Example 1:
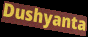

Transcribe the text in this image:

Dushyanta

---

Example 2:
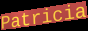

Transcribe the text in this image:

Patricia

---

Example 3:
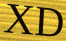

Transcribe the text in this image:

XD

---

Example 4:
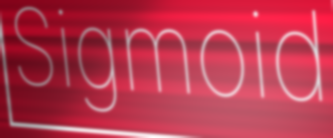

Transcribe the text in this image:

Sigmoid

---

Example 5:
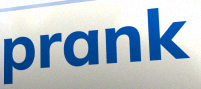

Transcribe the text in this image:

prank